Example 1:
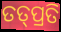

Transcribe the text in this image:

ତତ୍‌ପ୍ରତି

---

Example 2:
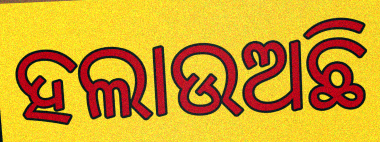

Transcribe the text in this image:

ହଲାଉଅଛି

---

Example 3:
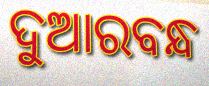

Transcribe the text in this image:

ଦୁଆରବନ୍ଧ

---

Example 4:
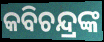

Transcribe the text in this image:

କବିଚନ୍ଦ୍ରଙ୍କ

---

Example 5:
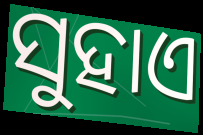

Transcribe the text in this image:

ସୁହାଏ